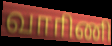
வாரிணி